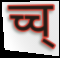
च्च्